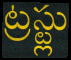
ట్రస్ట్లు